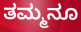
ತಮ್ಮನೂ